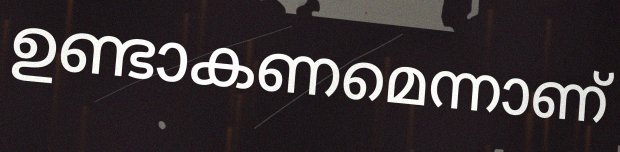
ഉണ്ടാകണമെന്നാണ്